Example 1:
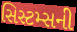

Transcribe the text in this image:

સિસ્ટમ્સની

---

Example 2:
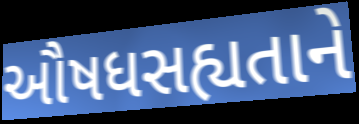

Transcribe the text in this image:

ઔષધસહ્યતાને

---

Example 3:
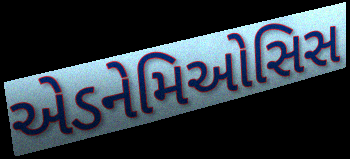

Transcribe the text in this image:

એડનેમિઓસિસ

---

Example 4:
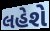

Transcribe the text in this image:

લહેશે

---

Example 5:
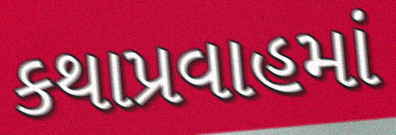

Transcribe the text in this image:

કથાપ્રવાહમાં